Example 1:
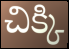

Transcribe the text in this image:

చిక్కి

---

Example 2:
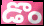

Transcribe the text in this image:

డొం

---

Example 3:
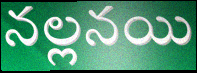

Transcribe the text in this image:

నల్లనయి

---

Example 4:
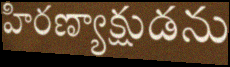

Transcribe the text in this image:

హిరణ్యాక్షుడను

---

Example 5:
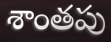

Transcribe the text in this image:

శాంతపు